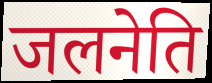
जलनेति